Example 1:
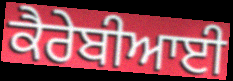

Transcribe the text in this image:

ਕੈਰੇਬੀਆਈ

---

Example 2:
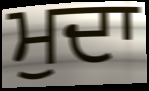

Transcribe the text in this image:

ਮੁਦਾ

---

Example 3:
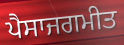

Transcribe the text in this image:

ਪੈਸਾਜਗਮੀਤ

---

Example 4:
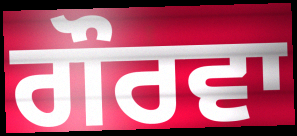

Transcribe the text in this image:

ਗੌਰਵਾ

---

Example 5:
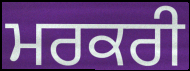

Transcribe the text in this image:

ਮਰਕਰੀ